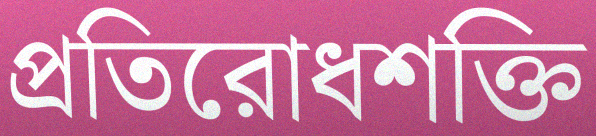
প্রতিরোধশক্তি